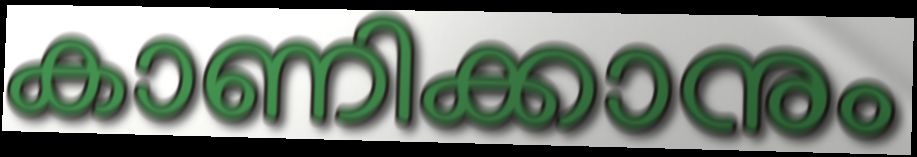
കാണിക്കാനും